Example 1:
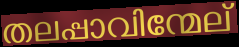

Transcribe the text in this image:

തലപ്പാവിന്മേല്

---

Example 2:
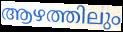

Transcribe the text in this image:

ആഴത്തിലും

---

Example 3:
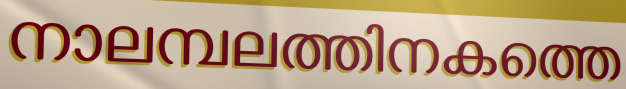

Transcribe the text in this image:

നാലമ്പലത്തിനകത്തെ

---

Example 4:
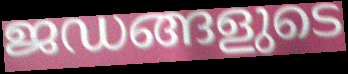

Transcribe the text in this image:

ജഡങ്ങളുടെ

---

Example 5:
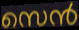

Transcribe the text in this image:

സെൻ